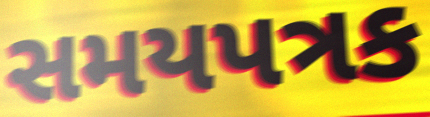
સમયપત્રક